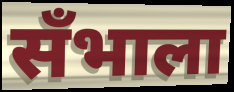
सँभाला